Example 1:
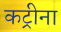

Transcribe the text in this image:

कट्रीना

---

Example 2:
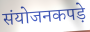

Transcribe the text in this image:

संयोजनकपड़े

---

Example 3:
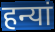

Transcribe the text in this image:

हन्यां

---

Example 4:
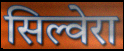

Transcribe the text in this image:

सिल्वेरा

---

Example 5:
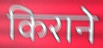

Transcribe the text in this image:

किराने